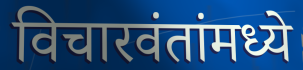
विचारवंतांमध्ये